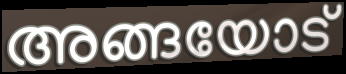
അങ്ങയോട്